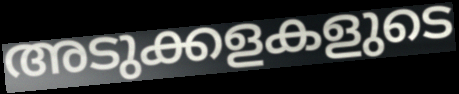
അടുക്കളകളുടെ